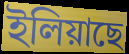
ইলিয়াছে